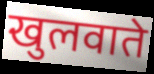
खुलवाते